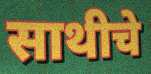
साथीचे